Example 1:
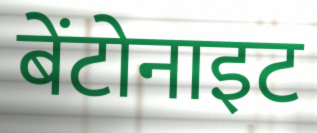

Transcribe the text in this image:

बेंटोनाइट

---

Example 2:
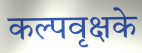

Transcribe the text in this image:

कल्पवृक्षके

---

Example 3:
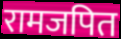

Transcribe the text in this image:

रामजपित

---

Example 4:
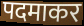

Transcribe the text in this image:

पदमाकर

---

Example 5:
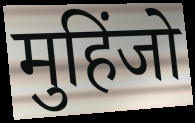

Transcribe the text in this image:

मुहिंजो